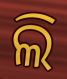
ଲି